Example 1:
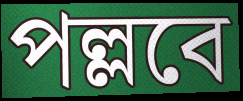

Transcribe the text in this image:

পল্লবে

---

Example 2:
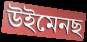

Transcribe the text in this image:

উইমেনছ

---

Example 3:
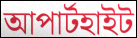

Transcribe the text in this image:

আপাৰ্টহাইট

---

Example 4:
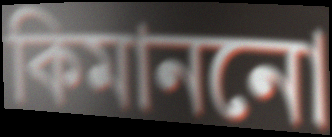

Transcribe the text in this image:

কিমাননো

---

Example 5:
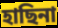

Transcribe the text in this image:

হাছিনা